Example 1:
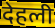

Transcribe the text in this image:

देहली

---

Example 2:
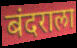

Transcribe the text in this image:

बंदराला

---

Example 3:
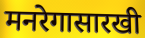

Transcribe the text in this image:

मनरेगासारखी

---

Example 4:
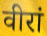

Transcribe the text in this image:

वीरां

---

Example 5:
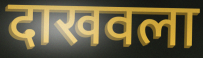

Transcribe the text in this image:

दाखवला